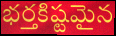
భర్తకిష్టమైన